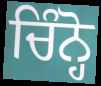
ਚਿੰਨ੍ਹੋ